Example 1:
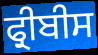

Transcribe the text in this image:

ਫ੍ਰੀਬੀਸ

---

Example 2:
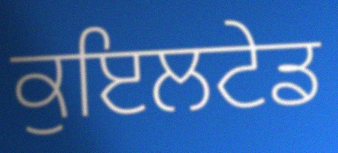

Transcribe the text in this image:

ਕੁਇਲਟੇਡ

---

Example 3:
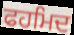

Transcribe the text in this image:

ਫਹਮਿਦ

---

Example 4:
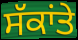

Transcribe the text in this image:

ਸੱਕਾਂਤੇ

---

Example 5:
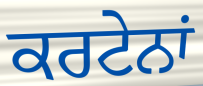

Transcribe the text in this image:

ਕਰਟੇਨਾਂ